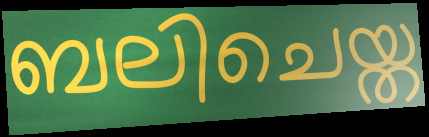
ബലിചെയ്ത